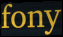
fony